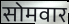
सोमवार